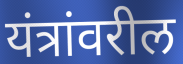
यंत्रांवरील